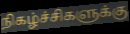
நிகழ்ச்சிகளுக்கு